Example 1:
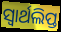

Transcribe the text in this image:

ସ୍ୱାର୍ଥଲିପ୍ତ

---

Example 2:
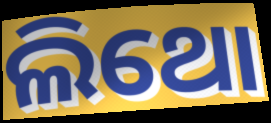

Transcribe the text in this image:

ଲିଥୋ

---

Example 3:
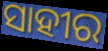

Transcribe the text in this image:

ସାହୀର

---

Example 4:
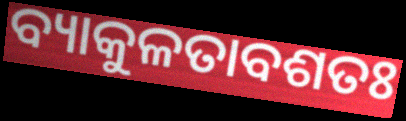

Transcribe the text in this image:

ବ୍ୟାକୁଳତାବଶତଃ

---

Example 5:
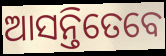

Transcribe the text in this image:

ଆସନ୍ତିତେବେ